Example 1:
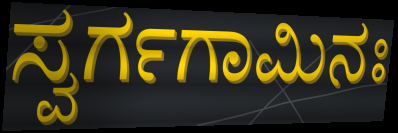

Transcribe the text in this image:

ಸ್ವರ್ಗಗಾಮಿನಃ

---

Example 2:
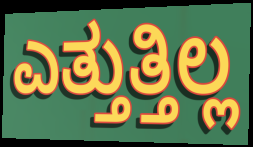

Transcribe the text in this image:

ಎತ್ತುತ್ತಿಲ್ಲ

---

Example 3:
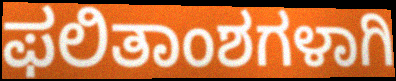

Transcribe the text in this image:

ಫಲಿತಾಂಶಗಳಾಗಿ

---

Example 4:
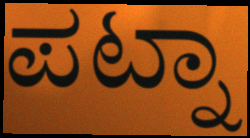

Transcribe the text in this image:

ಪಟ್ನಾ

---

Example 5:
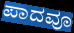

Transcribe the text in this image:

ಪಾದವೂ